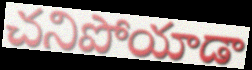
చనిపోయాడా